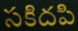
సకిదపి